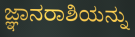
ಜ್ಞಾನರಾಶಿಯನ್ನು